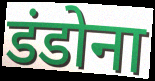
डंडोना